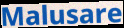
Malusare